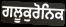
ਗਲੂਕੁਰੋਨਿਕ